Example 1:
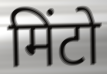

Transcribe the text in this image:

मिंटो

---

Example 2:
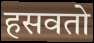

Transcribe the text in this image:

हसवतो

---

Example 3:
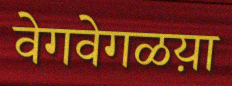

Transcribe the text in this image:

वेगवेगळय़ा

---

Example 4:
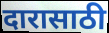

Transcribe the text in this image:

दारासाठी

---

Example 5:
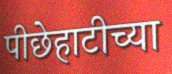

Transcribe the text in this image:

पीछेहाटीच्या